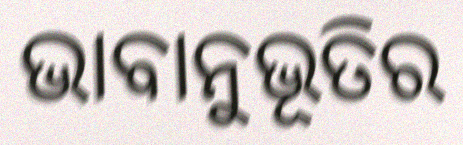
ଭାବାନୁଭୂତିର